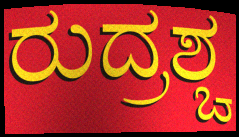
ರುದ್ರಶ್ಚ